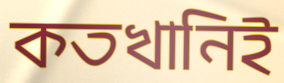
কতখানিই